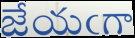
జేయఁగా